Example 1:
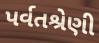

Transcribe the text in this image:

પર્વતશ્રેણી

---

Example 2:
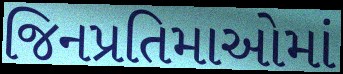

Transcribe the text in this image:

જિનપ્રતિમાઓમાં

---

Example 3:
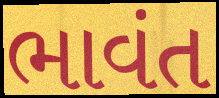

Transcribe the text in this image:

ભાવંત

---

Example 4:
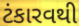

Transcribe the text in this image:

ટંકારવથી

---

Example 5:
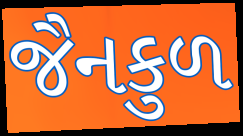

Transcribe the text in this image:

જૈનકુળ